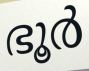
ഭൂർ